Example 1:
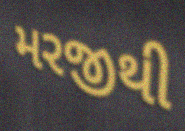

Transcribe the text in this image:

મરજીથી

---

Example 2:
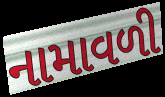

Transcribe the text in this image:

નામાવળી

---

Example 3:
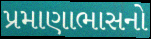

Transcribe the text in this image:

પ્રમાણાભાસનો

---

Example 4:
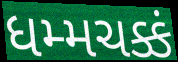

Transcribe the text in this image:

ધમ્મચક્કં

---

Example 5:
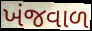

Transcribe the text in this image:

ખંજવાળ